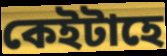
কেইটাহে